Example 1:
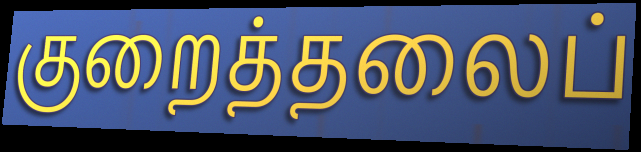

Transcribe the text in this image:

குறைத்தலைப்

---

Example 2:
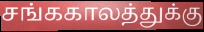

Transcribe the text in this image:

சங்ககாலத்துக்கு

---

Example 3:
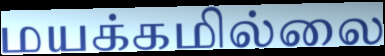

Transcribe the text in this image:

மயக்கமில்லை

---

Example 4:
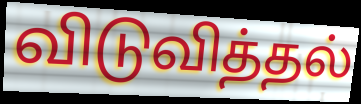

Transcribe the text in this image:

விடுவித்தல்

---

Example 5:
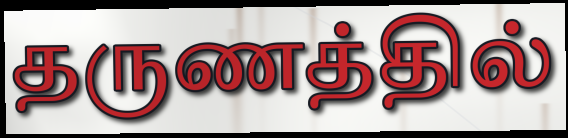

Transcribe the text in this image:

தருணத்தில்